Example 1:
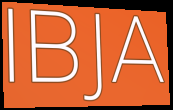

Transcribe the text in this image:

IBJA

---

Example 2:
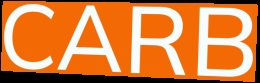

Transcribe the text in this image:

CARB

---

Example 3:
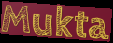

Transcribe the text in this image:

Mukta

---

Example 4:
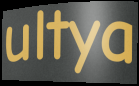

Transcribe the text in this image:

ultya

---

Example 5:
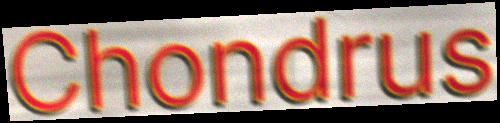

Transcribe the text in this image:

Chondrus